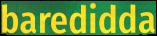
baredidda